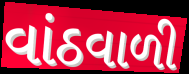
વાંઠવાળી